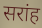
सरांह